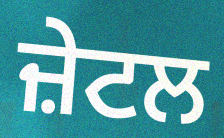
ਜ਼ੇਟਲ